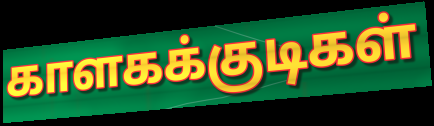
காளகக்குடிகள்